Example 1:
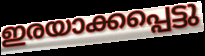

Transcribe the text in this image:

ഇരയാക്കപ്പെട്ടു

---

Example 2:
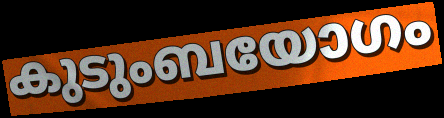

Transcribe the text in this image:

കുടുംബയോഗം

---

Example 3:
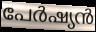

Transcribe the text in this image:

പേർഷ്യൻ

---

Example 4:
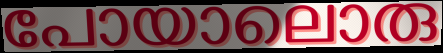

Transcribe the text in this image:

പോയാലൊരു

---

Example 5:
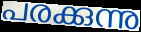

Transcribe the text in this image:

പരക്കുന്നു